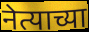
नेत्याच्या